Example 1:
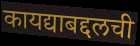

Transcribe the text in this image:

कायद्याबद्दलची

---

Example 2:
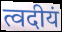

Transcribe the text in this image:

त्वदीयं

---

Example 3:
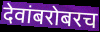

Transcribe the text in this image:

देवांबरोबरच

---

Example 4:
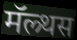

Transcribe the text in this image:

मॅल्थस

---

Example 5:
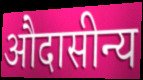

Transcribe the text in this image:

औदासीन्य